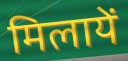
मिलायें